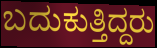
ಬದುಕುತ್ತಿದ್ದರು